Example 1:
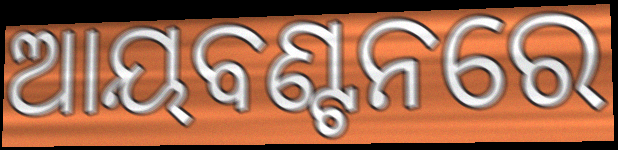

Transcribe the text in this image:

ଆୟବଣ୍ଟନରେ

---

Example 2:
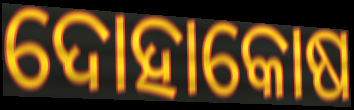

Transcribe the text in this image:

ଦୋହାକୋଷ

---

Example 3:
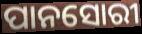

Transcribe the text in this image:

ପାନସୋରୀ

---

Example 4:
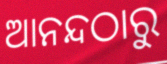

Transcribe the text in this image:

ଆନନ୍ଦଠାରୁ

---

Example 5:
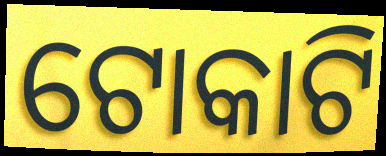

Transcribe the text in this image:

ଟୋକାଟି